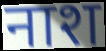
नाश